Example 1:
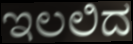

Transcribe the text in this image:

ಇಲಲಿದ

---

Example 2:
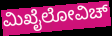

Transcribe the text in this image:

ಮಿಖೈಲೋವಿಚ್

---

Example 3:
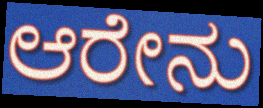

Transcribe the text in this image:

ಆರೇನು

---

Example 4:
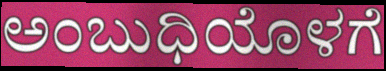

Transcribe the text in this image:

ಅಂಬುಧಿಯೊಳಗೆ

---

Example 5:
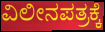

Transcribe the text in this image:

ವಿಲೀನಪತ್ರಕ್ಕೆ